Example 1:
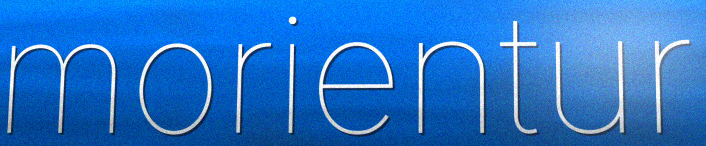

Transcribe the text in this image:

morientur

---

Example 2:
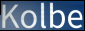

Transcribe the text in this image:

Kolbe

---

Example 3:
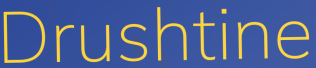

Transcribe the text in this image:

Drushtine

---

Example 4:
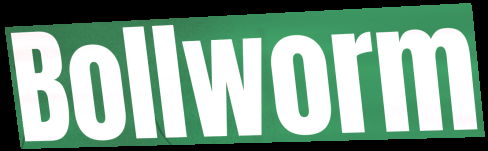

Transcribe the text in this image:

Bollworm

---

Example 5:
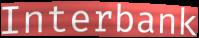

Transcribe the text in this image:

Interbank